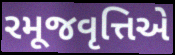
રમૂજવૃત્તિએ